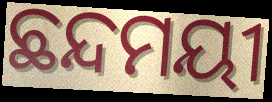
ଛନ୍ଦମୟୀ